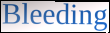
Bleeding